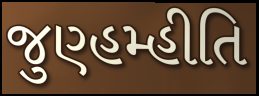
જુણ્હમ્હીતિ